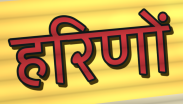
हरिणों